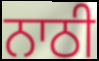
ਨਾਠੀ